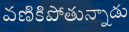
వణికిపోతున్నాడు